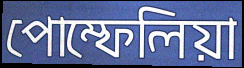
পোম্ফেলিয়া